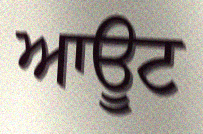
ਆਊਟ